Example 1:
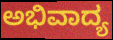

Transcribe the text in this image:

ಅಭಿವಾದ್ಯ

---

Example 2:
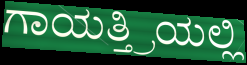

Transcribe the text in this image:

ಗಾಯತ್ತ್ರಿಯಲ್ಲಿ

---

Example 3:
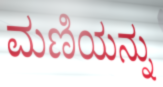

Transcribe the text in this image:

ಮಣಿಯನ್ನು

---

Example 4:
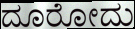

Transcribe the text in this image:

ದೂರೋದು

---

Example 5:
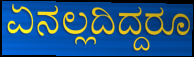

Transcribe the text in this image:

ಏನಲ್ಲದಿದ್ದರೂ